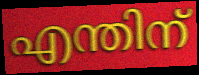
എന്തിന്